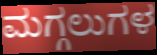
ಮಗ್ಗಲುಗಳ